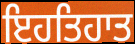
ਇਹਤਿਹਾਤ